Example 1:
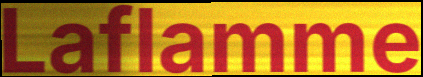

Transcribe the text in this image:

Laflamme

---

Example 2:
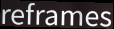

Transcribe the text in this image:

reframes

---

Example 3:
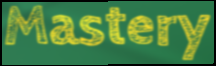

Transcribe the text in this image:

Mastery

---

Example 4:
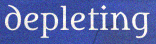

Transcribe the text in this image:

depleting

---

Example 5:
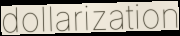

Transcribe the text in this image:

dollarization